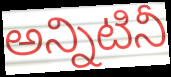
అన్నిటినీ